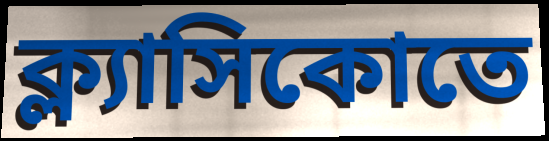
ক্ল্যাসিকোতে